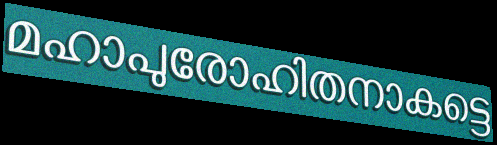
മഹാപുരോഹിതനാകട്ടെ